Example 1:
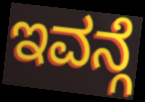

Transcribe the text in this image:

ಇವನ್ಗೆ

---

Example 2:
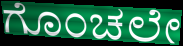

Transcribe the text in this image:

ಗೊಂಚಲೇ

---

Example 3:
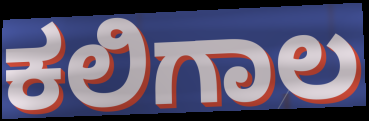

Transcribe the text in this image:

ಕಲಿಗಾಲ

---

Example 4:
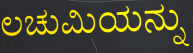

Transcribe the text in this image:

ಲಚುಮಿಯನ್ನು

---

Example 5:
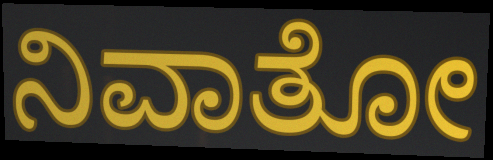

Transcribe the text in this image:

ನಿವಾತೋ